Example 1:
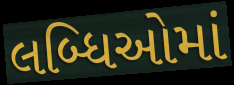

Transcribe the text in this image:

લબ્ધિઓમાં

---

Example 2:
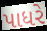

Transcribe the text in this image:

પાધરે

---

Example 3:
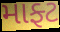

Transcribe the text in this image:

માફ્ટ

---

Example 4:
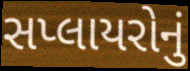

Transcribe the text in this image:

સપ્લાયરોનું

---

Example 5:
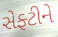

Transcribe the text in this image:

સેફ્ટીને